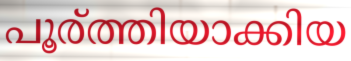
പൂര്ത്തിയാക്കിയ